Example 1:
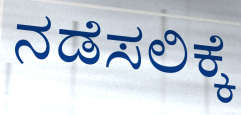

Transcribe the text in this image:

ನಡೆಸಲಿಕ್ಕೆ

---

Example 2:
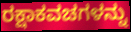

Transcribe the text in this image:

ರಕ್ಷಾಕವಚಗಳನ್ನು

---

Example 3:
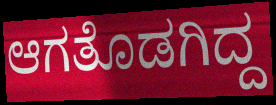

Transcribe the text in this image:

ಆಗತೊಡಗಿದ್ದ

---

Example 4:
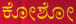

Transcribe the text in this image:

ಕೋಶೋ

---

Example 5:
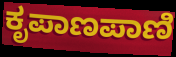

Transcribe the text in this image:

ಕೃಪಾಣಪಾಣಿ